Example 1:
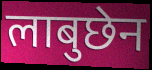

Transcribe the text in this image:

लाबुछेन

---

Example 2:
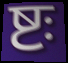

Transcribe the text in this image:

ष्टः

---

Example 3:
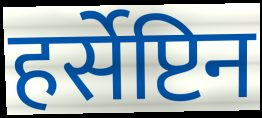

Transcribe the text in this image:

हर्सेप्टिन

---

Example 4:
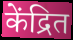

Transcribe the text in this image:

केंद्रित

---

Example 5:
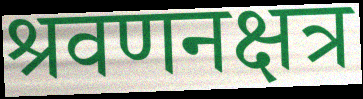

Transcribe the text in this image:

श्रवणनक्षत्र